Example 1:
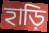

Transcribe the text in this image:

হাড়ি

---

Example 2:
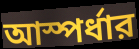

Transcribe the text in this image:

আস্পর্ধার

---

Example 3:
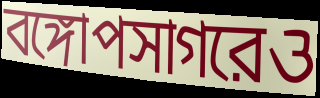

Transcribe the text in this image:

বঙ্গোপসাগরেও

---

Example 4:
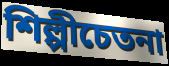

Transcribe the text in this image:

শিল্পীচেতনা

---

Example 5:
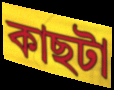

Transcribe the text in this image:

কাছটা